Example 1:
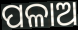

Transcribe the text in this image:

ପଳାଅ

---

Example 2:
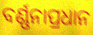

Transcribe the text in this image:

ବର୍ଣ୍ଣନାପ୍ରଧାନ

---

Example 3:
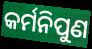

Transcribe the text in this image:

କର୍ମନିପୁଣ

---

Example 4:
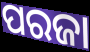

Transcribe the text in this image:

ପରଜା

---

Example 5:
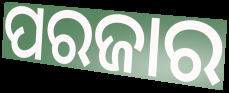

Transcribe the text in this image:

ପରଜାର